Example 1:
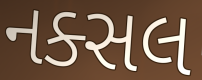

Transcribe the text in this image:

નક્સલ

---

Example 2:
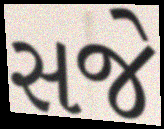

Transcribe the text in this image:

સજે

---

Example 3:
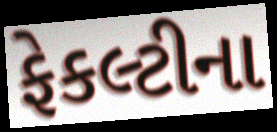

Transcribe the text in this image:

ફેકલ્ટીના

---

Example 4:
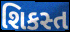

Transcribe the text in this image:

શિકસ્ત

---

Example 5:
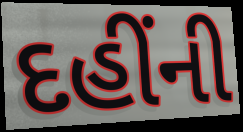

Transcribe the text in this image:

દહીંની